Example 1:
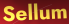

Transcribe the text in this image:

Sellum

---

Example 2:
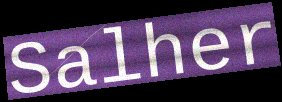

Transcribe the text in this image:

Salher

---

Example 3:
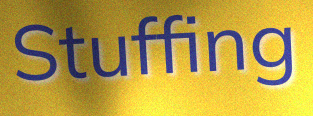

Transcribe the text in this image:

Stuffing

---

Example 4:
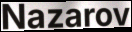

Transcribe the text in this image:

Nazarov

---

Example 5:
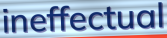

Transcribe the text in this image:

ineffectual